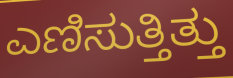
ಎಣಿಸುತ್ತಿತ್ತು